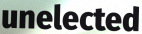
unelected